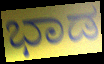
ಭಾಡ